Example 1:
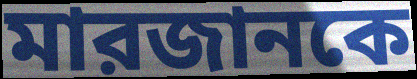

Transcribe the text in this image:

মারজানকে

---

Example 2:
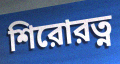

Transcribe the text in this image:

শিরোরত্ন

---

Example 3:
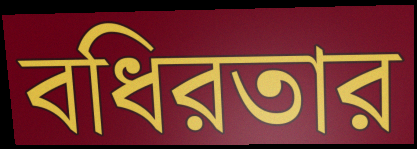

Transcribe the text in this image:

বধিরতার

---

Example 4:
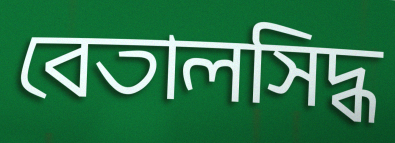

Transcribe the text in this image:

বেতালসিদ্ধ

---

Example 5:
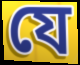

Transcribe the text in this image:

যে